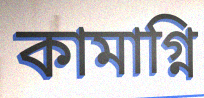
কামাগ্নি